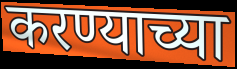
करण्याच्या